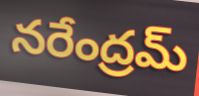
నరేంద్రమ్